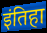
इंतिहा